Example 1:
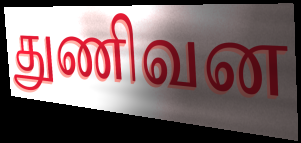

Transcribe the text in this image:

துணிவன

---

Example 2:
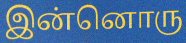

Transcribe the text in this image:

இன்னொரு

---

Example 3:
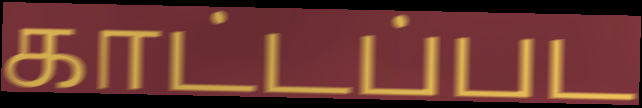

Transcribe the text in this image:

காட்டப்பட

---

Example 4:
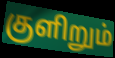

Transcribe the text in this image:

குளிறும்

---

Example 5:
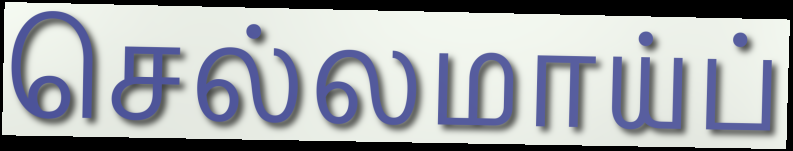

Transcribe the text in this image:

செல்லமாய்ப்